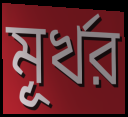
মূর্খর